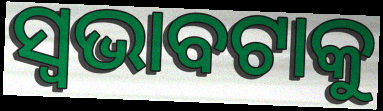
ସ୍ଵଭାବଟାକୁ